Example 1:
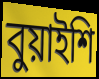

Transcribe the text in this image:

বুয়াইশি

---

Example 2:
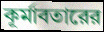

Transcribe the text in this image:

কূর্মাবতারের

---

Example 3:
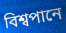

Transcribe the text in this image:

বিশ্বপানে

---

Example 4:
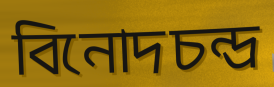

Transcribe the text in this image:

বিনোদচন্দ্র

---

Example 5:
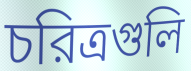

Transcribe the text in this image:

চরিত্রগুলি